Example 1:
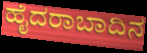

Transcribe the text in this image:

ಹೈದರಾಬಾದಿನ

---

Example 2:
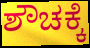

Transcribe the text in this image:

ಶೌಚಕ್ಕೆ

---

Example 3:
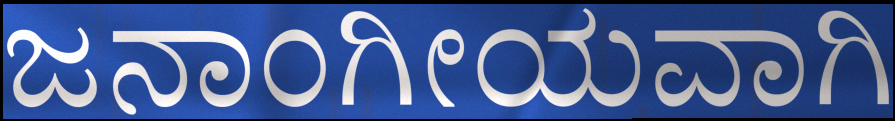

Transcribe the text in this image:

ಜನಾಂಗೀಯವಾಗಿ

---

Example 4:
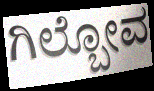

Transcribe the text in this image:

ಗಿಲ್ಬೋವ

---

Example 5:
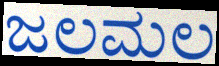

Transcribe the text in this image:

ಜಲಮಲ